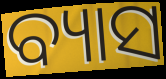
ବ୍ୟାସ